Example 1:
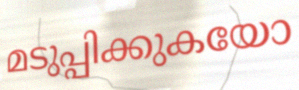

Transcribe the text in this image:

മടുപ്പിക്കുകയോ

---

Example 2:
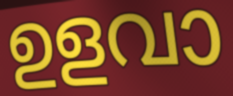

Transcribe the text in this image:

ഉളവാ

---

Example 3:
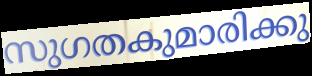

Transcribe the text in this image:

സുഗതകുമാരിക്കു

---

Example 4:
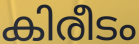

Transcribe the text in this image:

കിരീടം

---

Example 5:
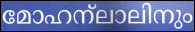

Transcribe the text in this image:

മോഹന്ലാലിനും